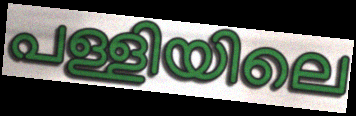
പള്ളിയിലെ